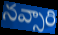
నవ్సారి